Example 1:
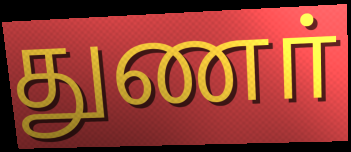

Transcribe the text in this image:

துணர்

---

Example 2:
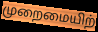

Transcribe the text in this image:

முறைமையிற்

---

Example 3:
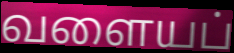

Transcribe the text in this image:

வளையப்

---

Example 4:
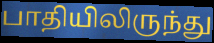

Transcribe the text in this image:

பாதியிலிருந்து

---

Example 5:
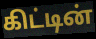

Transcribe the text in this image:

கிட்டின்